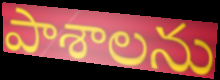
పాశాలను